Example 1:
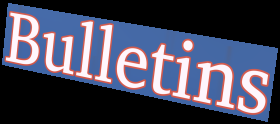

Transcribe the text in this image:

Bulletins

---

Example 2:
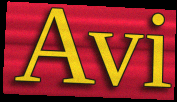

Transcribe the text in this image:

Avi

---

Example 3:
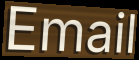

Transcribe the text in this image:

Email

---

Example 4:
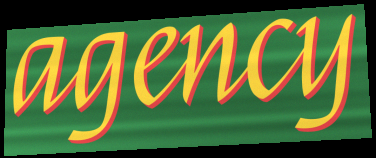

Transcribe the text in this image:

agency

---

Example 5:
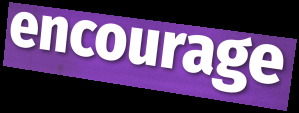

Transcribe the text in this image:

encourage